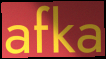
afka